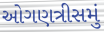
ઓગણત્રીસમું